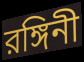
রঙ্গিনী